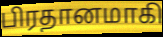
பிரதானமாகி